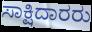
ಸಾಕ್ಷಿದಾರರು